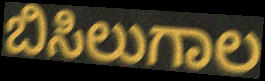
ಬಿಸಿಲುಗಾಲ